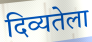
दिव्यतेला